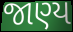
જાણ્ય